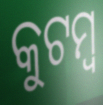
କୁଟମ୍ୱ